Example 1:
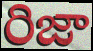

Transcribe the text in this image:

రిజా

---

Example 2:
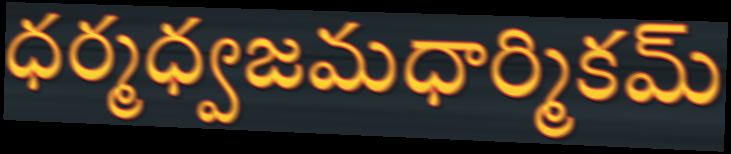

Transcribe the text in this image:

ధర్మధ్వజమధార్మికమ్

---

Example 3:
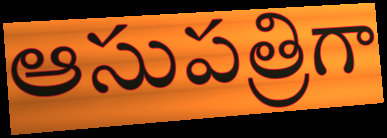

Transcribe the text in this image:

ఆసుపత్రిగా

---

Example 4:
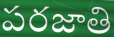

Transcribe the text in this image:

పరజాతి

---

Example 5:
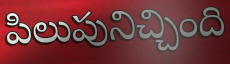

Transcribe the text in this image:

పిలుపునిచ్చింది